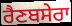
ਰੈਣਬਸੇਰਾ